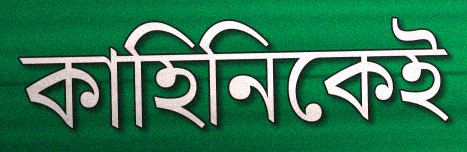
কাহিনিকেই